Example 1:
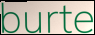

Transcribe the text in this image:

burte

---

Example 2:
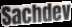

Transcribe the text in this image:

Sachdev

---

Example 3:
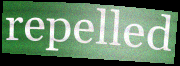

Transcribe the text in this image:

repelled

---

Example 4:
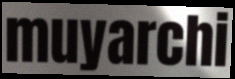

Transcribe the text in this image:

muyarchi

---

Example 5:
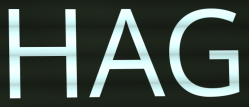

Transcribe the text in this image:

HAG